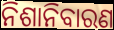
ନିଶାନିବାରଣ